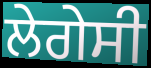
ਲੇਗੇਸੀ